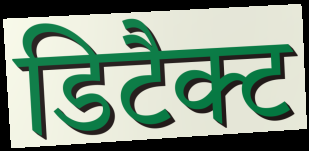
डिटैक्ट